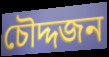
চৌদ্দজন